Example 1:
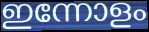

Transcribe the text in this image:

ഇന്നോളം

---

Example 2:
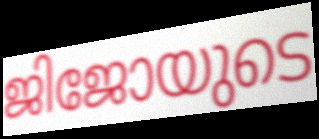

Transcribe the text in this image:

ജിജോയുടെ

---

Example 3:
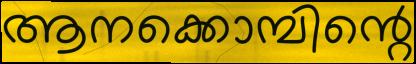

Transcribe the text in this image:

ആനക്കൊമ്പിന്റെ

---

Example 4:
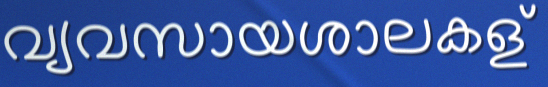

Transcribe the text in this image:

വ്യവസായശാലകള്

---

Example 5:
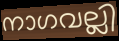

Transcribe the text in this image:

നാഗവല്ലി